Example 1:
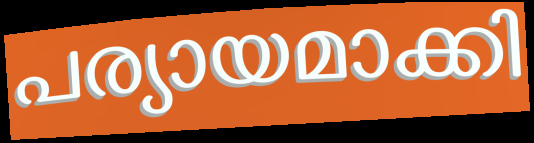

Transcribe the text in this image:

പര്യായമാക്കി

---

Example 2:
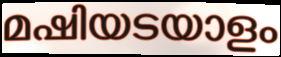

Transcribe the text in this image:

മഷിയടയാളം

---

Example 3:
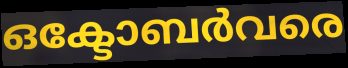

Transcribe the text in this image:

ഒക്ടോബർവരെ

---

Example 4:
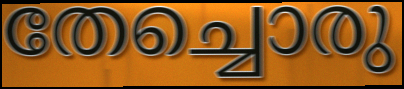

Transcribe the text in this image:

തേച്ചൊരു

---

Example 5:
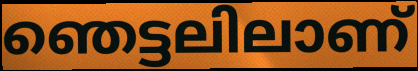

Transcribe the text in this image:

ഞെട്ടലിലാണ്